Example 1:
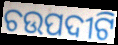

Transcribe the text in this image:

ଚଉପଦୀଟି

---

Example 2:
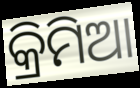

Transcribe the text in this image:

କ୍ରିମିଆ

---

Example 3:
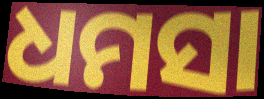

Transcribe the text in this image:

ଧମସା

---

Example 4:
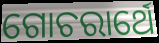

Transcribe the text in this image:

ଗୋଚରାର୍ଥେ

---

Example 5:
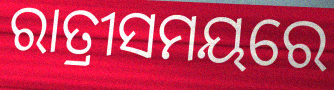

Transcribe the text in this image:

ରାତ୍ରୀସମୟରେ